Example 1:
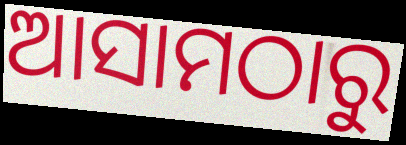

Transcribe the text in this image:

ଆସାମଠାରୁ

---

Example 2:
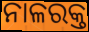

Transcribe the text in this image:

ନାଳରକ୍ତ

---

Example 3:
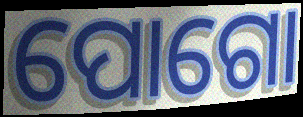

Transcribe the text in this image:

ପୋଗୋ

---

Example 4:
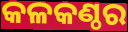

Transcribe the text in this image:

କଳକଣ୍ଠର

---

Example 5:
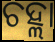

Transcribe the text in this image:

ଚହ୍ଲା